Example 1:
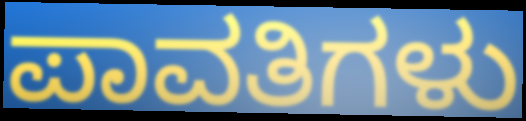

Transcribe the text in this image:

ಪಾವತಿಗಳು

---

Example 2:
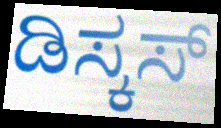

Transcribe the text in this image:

ಡಿಸ್ಕಸ್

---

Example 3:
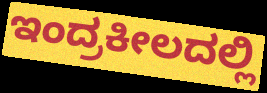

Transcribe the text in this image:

ಇಂದ್ರಕೀಲದಲ್ಲಿ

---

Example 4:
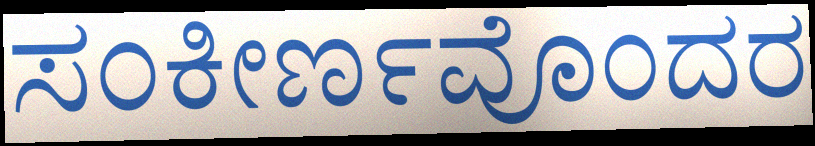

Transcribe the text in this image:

ಸಂಕೀರ್ಣವೊಂದರ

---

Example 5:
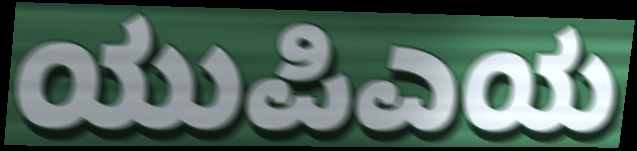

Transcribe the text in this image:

ಯುಪಿಎಯ